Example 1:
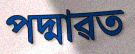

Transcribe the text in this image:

পদ্মাৱত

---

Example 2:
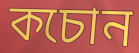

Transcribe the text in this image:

কচোন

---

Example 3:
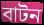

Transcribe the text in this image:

বাটন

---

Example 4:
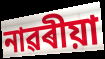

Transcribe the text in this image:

নাৱৰীয়া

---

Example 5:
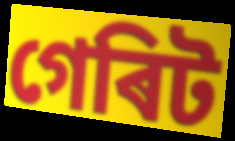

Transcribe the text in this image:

গেৰিট